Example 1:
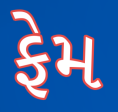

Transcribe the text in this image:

ફેમ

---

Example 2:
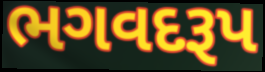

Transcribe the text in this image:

ભગવદરૂપ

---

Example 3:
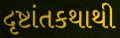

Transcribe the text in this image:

દૃષ્ટાંતકથાથી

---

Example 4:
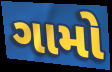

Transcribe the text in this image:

ગામો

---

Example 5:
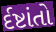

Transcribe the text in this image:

ર્દષ્ટાંતો